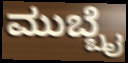
ಮುಬ್ಬೈ